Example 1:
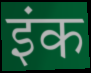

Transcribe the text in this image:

इंक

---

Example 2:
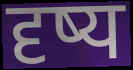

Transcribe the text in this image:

दृष्य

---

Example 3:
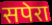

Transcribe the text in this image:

सपेरा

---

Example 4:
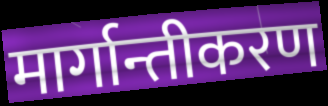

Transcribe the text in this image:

मार्गान्तीकरण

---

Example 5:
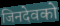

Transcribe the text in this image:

जिनदेवको